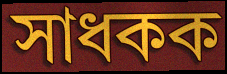
সাধকক